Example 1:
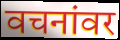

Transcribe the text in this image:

वचनांवर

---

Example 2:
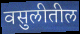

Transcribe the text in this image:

वसुलीतील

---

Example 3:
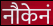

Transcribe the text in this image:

नौकेनं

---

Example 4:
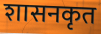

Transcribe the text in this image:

शासनकृत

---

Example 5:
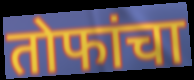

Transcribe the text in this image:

तोफांचा